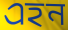
এহন